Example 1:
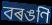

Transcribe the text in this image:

বৰঙণি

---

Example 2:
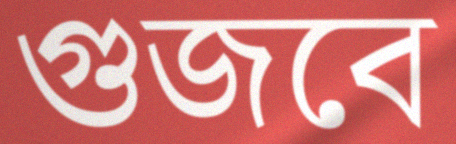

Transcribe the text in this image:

গুজবে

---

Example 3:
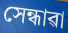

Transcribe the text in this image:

সেন্ধাৱা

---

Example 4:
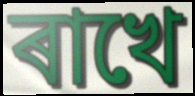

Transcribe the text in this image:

ৰাখে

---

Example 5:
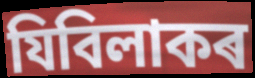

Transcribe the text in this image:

যিবিলাকৰ